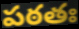
పఠతః